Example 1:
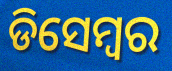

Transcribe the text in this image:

ଡିସେମ୍ୱର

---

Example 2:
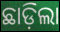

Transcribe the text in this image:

ଛାଡ଼ିଲା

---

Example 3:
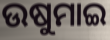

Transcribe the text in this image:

ଉଷୁମାଇ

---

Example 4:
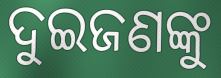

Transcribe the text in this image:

ଦୁଇଜଣଙ୍କୁ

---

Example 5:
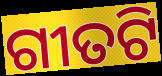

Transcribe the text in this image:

ଗୀତଟି